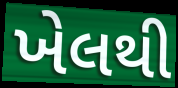
ખેલથી